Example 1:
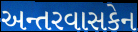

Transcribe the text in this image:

અન્તરવાસકેન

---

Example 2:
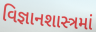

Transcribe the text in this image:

વિજ્ઞાનશાસ્ત્રમાં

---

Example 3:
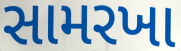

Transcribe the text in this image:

સામરખા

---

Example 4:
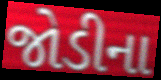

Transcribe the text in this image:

જોડીના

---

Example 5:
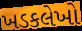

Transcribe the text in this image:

ખડકલેખો